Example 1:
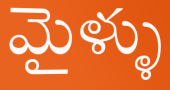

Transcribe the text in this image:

మైళ్ళు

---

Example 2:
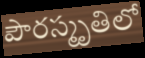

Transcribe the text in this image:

పౌరస్మృతిలో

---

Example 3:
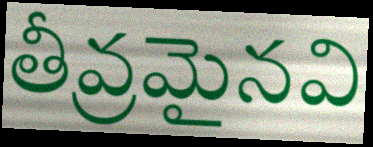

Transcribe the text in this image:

తీవ్రమైనవి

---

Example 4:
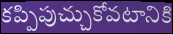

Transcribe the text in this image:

కప్పిపుచ్చుకోవటానికి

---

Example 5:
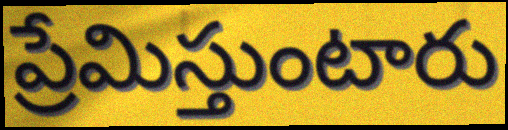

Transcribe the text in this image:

ప్రేమిస్తుంటారు